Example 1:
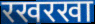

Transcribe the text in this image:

रखरखा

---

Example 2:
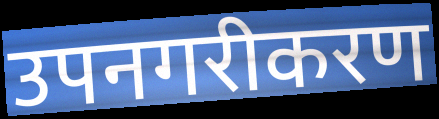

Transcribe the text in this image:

उपनगरीकरण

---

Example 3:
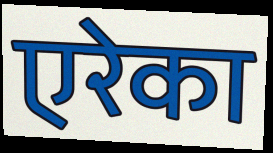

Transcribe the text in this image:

एरेका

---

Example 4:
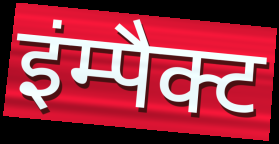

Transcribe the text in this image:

इंम्पैक्ट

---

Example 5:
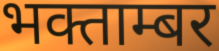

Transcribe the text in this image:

भक्ताम्बर